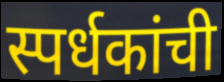
स्पर्धकांची